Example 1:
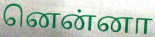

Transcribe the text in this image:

னென்னா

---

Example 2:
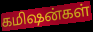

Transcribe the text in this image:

கமிஷன்கள்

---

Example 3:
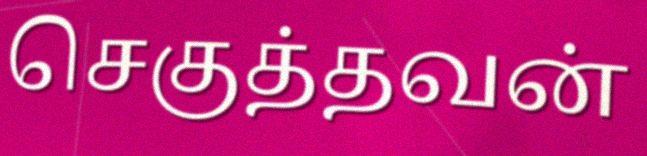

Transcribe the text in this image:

செகுத்தவன்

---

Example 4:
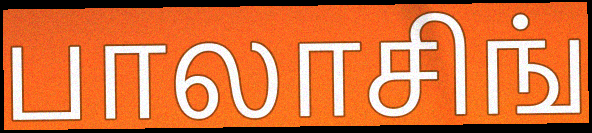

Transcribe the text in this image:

பாலாசிங்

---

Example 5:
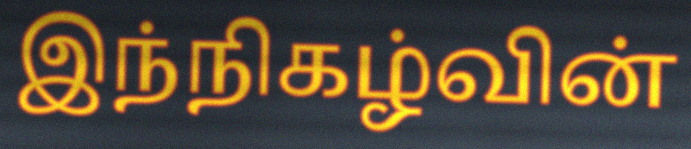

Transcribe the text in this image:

இந்நிகழ்வின்